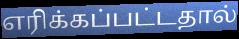
எரிக்கப்பட்டதால்